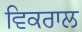
ਵਿਕਰਾਲ